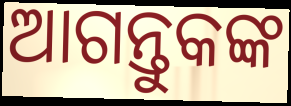
ଆଗନ୍ତୁକଙ୍କ